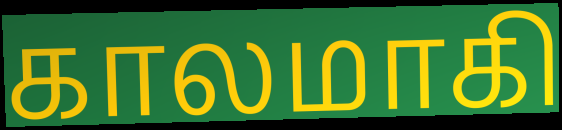
காலமாகி